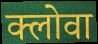
क्लोवा